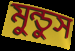
মুন্ডুস